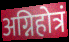
अग्निहोत्रं